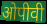
ओपीवी